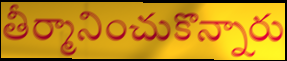
తీర్మానించుకొన్నారు